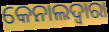
କେନାଲଦ୍ଵାରା